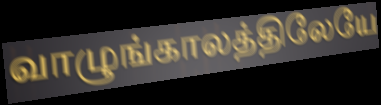
வாழுங்காலத்திலேயே